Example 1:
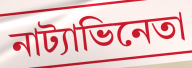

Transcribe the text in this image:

নাট্যাভিনেতা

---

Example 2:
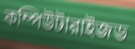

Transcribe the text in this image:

কম্পিউটারাইজড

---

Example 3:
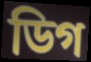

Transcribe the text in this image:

ডিগ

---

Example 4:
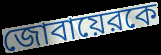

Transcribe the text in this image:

জোবায়েরকে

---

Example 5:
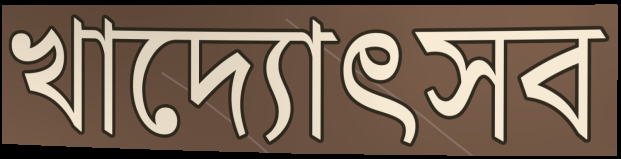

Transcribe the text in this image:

খাদ্যোৎসব